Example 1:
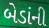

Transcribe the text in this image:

બેડાંની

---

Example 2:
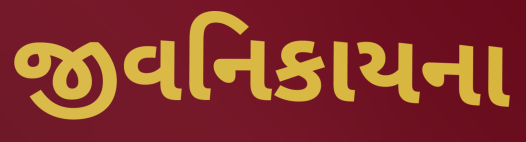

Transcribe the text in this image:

જીવનિકાયના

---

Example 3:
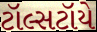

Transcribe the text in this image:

ટૉલ્સટૉયે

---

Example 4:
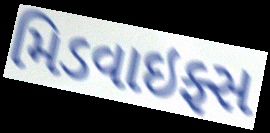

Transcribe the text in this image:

મિડવાઇફ્સ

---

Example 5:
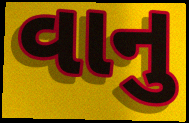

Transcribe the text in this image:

વાનુ